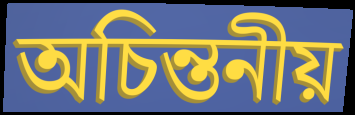
অচিন্তনীয়